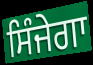
ਸਿੰਜੇਗਾ